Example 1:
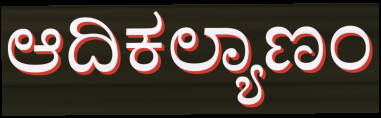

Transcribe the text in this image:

ಆದಿಕಲ್ಯಾಣಂ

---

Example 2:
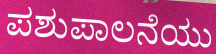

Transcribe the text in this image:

ಪಶುಪಾಲನೆಯು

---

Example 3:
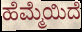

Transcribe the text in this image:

ಹೆಮ್ಮೆಯಿದೆ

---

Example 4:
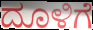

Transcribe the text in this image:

ದೂಳಿಗೆ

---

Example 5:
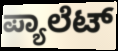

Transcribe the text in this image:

ಪ್ಯಾಲೆಟ್